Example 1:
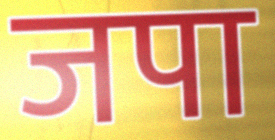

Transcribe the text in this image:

जपा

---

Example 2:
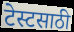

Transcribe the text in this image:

टेस्टसाठी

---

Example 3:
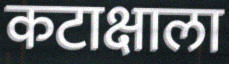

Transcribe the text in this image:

कटाक्षाला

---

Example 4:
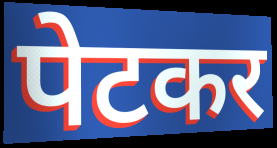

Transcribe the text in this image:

पेटकर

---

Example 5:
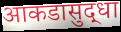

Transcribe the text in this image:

आकडासुद्धा